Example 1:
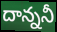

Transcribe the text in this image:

దాన్ననీ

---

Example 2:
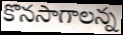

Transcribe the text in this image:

కొనసాగాలన్న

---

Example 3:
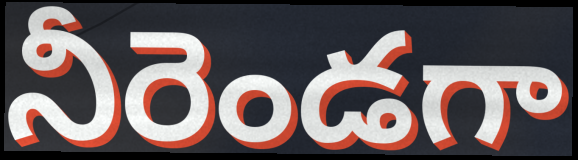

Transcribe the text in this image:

నీరెండగా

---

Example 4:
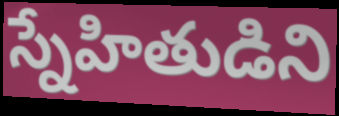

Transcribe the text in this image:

స్నేహితుడిని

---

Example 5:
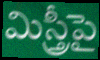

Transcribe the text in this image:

మిస్త్రీపై